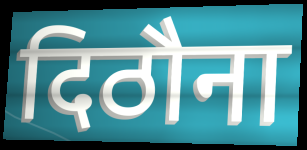
दिठौना